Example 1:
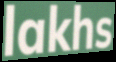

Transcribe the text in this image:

lakhs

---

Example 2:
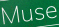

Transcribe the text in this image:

Muse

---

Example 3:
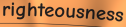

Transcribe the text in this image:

righteousness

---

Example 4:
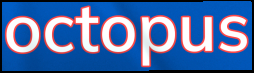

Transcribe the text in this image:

octopus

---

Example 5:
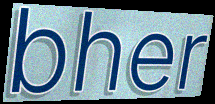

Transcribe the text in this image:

bher